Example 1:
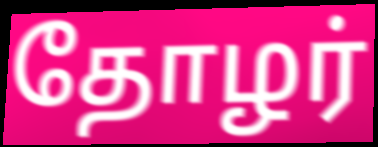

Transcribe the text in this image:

தோழர்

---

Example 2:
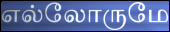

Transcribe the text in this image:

எல்லோருமே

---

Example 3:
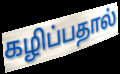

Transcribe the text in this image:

கழிப்பதால்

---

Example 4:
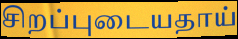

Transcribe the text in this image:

சிறப்புடையதாய்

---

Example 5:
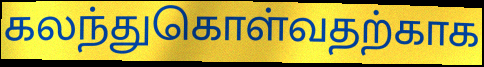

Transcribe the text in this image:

கலந்துகொள்வதற்காக